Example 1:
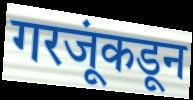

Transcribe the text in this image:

गरजूंकडून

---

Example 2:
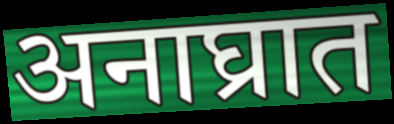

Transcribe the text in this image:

अनाघ्रात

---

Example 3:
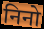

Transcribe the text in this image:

निनो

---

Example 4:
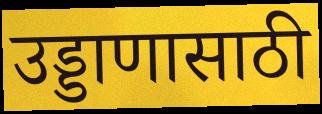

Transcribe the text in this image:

उड्डाणासाठी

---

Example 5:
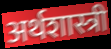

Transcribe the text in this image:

अर्थशास्त्री